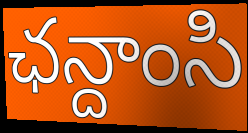
ఛన్దాంసి